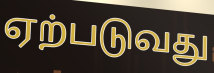
ஏற்படுவது